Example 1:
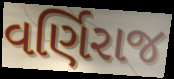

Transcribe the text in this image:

વર્ણિરાજ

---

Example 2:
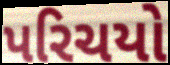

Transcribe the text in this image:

પરિચયો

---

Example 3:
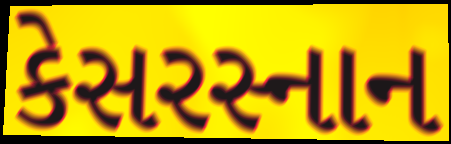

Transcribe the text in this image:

કેસરસ્નાન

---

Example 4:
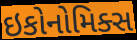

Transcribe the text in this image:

ઇકોનોમિક્સ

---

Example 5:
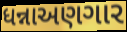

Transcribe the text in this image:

ધન્નાઅણગાર